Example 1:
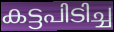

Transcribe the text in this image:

കട്ടപിടിച്ച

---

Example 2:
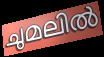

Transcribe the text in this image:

ചുമലിൽ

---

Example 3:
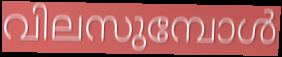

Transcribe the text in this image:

വിലസുമ്പോൾ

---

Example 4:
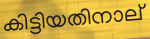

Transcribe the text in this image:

കിട്ടിയതിനാല്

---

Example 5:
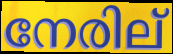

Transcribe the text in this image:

നേരില്